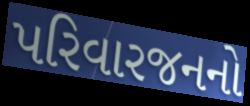
પરિવારજનનો